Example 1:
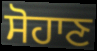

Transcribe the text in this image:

ਸੋਹਾਣ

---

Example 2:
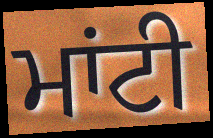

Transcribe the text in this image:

ਮਾਂਟੀ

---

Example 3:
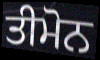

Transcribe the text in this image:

ਤੀਮੋਨ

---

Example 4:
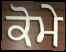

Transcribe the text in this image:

ਕੋਮੇ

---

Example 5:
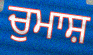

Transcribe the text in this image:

ਚੁਮਾਸ਼